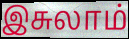
இசுலாம்